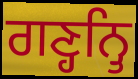
ਗਣ੍ਹਨ੍ਤਿ